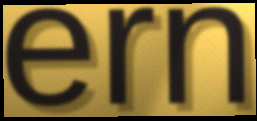
ern